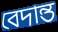
বেদান্ত